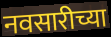
नवसारीच्या